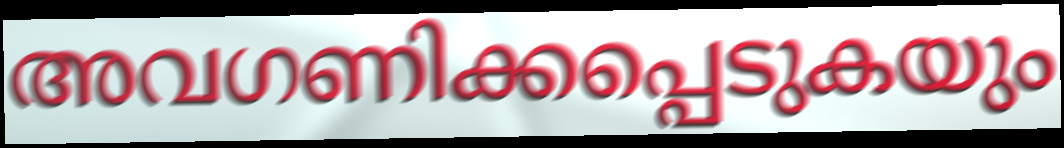
അവഗണിക്കപ്പെടുകയും